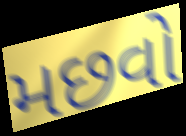
મછવો